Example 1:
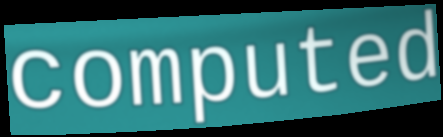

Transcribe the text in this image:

computed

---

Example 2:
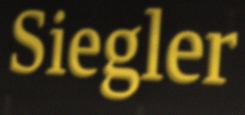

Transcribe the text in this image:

Siegler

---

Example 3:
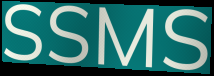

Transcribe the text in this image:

SSMS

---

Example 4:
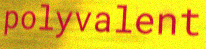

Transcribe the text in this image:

polyvalent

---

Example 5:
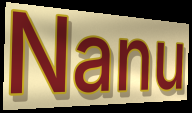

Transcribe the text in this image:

Nanu